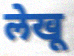
लेखू